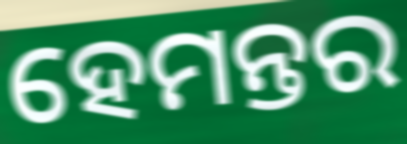
ହେମନ୍ତର